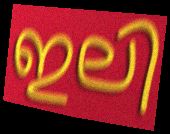
ഇലി